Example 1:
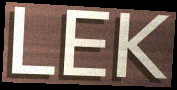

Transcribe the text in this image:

LEK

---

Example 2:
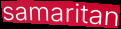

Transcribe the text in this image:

samaritan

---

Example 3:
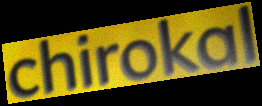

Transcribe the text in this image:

chirokal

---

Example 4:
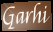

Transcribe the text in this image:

Garhi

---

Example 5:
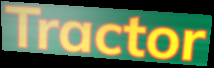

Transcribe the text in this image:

Tractor